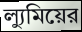
ল্যুমিয়ের